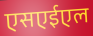
एसएईएल